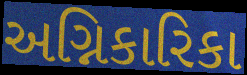
અગ્નિકારિકા